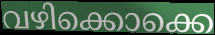
വഴിക്കൊക്കെ